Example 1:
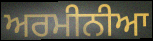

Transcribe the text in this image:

ਅਰਮੀਨੀਆ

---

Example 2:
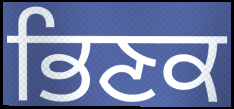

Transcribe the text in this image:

ਭਿਣਕ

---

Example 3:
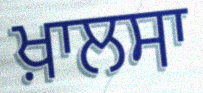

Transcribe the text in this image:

ਖ਼ਾਲਸਾ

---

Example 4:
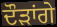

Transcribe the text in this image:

ਦੌੜਾਂਗੇ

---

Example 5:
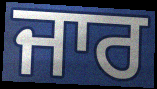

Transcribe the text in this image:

ਜਾਰ